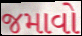
જમાવો